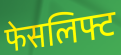
फेसलिफ्ट